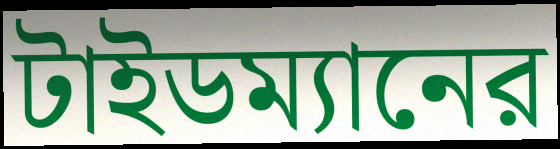
টাইডম্যানের